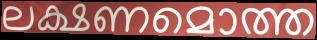
ലക്ഷണമൊത്ത